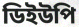
ডিইউপি